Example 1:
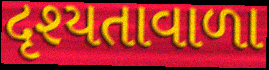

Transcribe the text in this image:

દૃશ્યતાવાળા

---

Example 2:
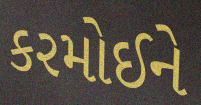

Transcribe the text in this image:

કરમોઈને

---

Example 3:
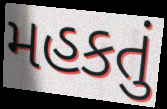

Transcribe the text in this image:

મહકતું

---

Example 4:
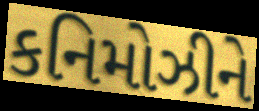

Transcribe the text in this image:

કનિમોઝીને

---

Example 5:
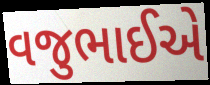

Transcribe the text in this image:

વજુભાઈએ